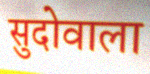
सुदोवाला